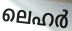
ലെഹർ